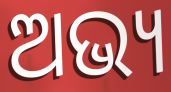
ଅଭ୍ୟ